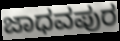
ಜಾಧವಪುರ